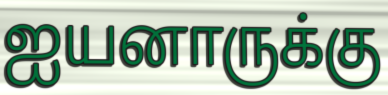
ஐயனாருக்கு